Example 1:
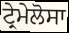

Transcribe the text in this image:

ਟ੍ਰੇਮੇਲੋਸਾ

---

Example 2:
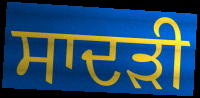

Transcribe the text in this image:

ਸਾਦੜੀ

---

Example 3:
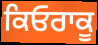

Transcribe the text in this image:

ਕਿਓਰਾਕੂ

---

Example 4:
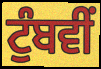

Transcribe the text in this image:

ਟੁੰਬਵੀਂ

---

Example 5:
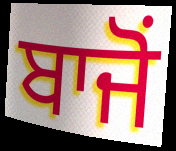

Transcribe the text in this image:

ਬਾਜੋਂ